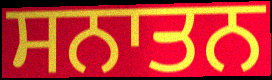
ਸਨਾਤਨ